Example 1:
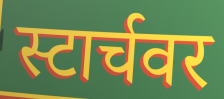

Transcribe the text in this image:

स्टार्चवर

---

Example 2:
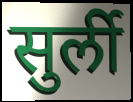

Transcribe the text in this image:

सुर्ली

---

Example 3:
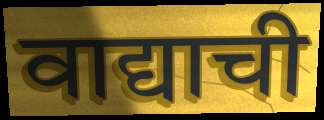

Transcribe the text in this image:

वाद्याची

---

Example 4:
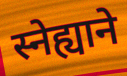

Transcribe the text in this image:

स्नेह्याने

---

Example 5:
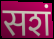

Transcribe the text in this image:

सशं